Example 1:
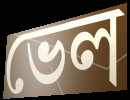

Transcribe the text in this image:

ভেল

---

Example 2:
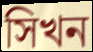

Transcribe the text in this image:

সিখন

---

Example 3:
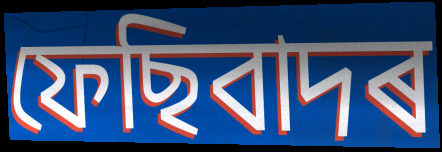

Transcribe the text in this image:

ফেছিবাদৰ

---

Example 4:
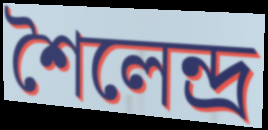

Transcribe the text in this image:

শৈলেন্দ্ৰ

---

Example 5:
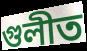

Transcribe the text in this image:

গুলীত